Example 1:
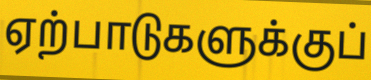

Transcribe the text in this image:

ஏற்பாடுகளுக்குப்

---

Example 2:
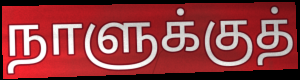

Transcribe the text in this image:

நாளுக்குத்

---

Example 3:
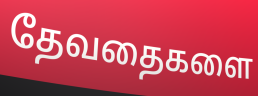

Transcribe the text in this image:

தேவதைகளை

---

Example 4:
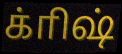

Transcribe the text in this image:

க்ரிஷ்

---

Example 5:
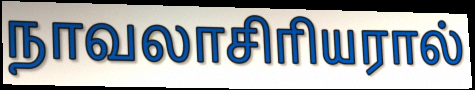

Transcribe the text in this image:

நாவலாசிரியரால்